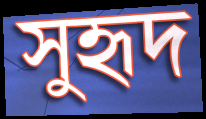
সুহৃদ